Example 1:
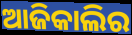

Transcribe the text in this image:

ଆଜିକାଲିର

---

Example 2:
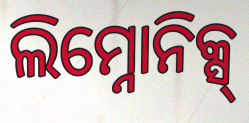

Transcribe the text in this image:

ଲିମ୍ନୋନିକ୍ସ୍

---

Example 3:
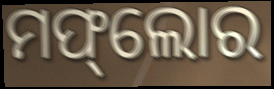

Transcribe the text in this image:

ମଫ୍‌ଲୋର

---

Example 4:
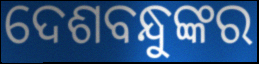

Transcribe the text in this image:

ଦେଶବନ୍ଧୁଙ୍କର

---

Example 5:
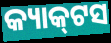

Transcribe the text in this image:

କ୍ୟାକ୍‌ଟସ